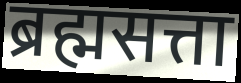
ब्रह्मसत्ता